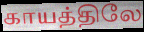
காயத்திலே